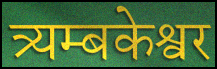
त्र्यम्बकेश्वर